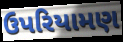
ઉપરિયામણ